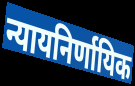
न्यायनिर्णायिक